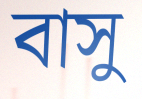
বাসু